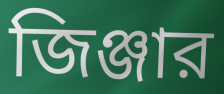
জিঞ্জার